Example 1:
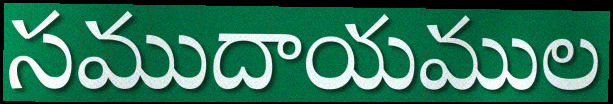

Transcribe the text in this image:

సముదాయముల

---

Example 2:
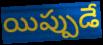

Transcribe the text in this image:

యిప్పుడే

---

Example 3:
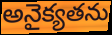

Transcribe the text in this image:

అనైక్యతను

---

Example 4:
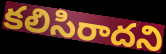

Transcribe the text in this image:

కలిసిరాదని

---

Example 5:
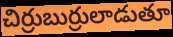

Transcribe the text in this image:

చిర్రుబుర్రులాడుతూ